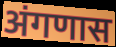
अंगणास